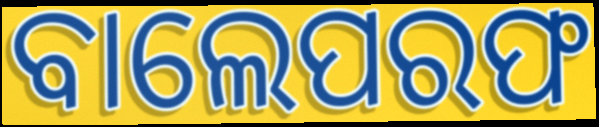
ବାଲେପରଫ